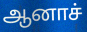
ஆனாச்